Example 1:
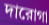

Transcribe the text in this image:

দারোগা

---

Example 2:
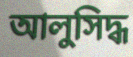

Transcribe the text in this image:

আলুসিদ্ধ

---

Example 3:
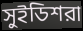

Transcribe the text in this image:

সুইডিশরা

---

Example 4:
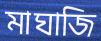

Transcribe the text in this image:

মাঘাজি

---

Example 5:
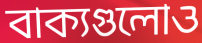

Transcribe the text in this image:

বাক্যগুলোও